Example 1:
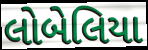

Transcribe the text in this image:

લોબેલિયા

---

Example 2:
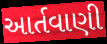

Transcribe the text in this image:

આર્તવાણી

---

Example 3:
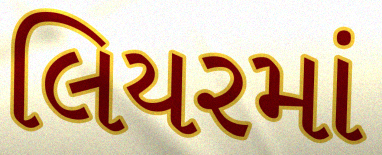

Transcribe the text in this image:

લિયરમાં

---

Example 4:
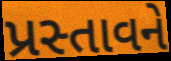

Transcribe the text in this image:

પ્રસ્તાવને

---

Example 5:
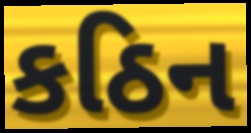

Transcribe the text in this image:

કઠિન